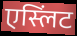
एस्लिंट